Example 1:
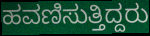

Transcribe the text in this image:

ಹವಣಿಸುತ್ತಿದ್ದರು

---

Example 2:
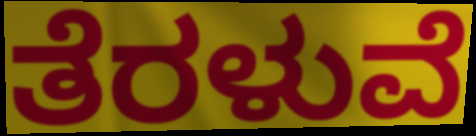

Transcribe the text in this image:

ತೆರಳುವೆ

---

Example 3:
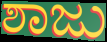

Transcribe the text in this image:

ಶಾಜು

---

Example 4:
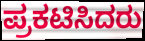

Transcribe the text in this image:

ಪ್ರಕಟಿಸಿದರು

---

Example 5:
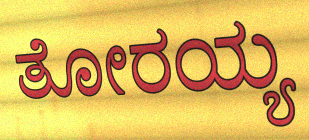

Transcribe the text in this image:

ತೋರಯ್ಯ